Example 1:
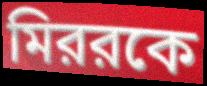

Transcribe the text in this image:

মিররকে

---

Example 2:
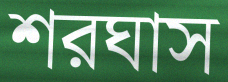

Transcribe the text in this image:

শরঘাস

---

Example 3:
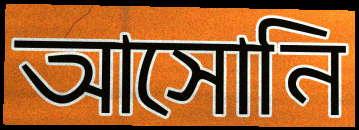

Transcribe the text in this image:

আসোনি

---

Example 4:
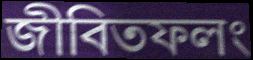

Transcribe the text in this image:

জীবিতফলং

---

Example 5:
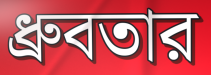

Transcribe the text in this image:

ধ্রুবতার